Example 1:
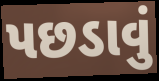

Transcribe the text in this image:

પછડાવું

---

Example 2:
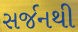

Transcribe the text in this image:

સર્જનથી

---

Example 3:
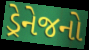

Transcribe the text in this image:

ડ્રેનેજનો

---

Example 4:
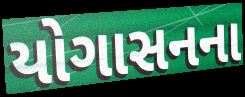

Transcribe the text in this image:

યોગાસનના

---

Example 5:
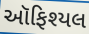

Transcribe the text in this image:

ઑફિશ્યલ